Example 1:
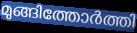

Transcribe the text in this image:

മുങ്ങിത്തോർത്തി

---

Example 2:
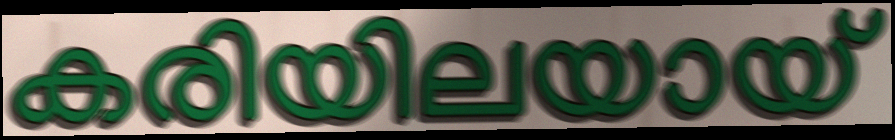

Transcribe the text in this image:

കരിയിലയായ്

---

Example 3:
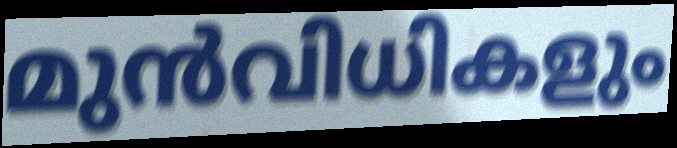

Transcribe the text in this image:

മുൻവിധികളും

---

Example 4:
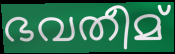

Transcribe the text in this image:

ഭവതീമ്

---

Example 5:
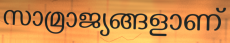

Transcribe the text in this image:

സാമ്രാജ്യങ്ങളാണ്